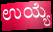
ಉಯ್ಯೆ